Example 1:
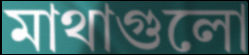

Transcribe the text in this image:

মাথাগুলো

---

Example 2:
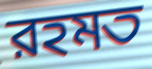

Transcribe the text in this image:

রহমত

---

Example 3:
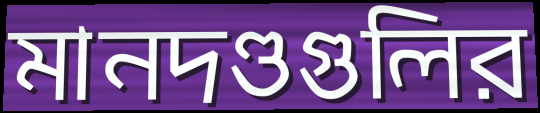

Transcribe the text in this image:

মানদণ্ডগুলির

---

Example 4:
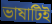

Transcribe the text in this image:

ভাষাটিই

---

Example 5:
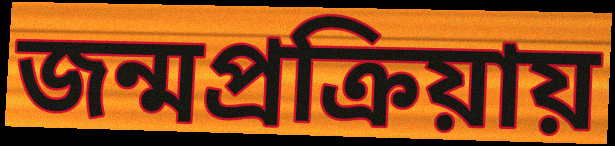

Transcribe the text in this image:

জন্মপ্রক্রিয়ায়